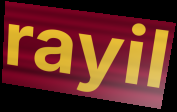
rayil